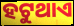
ହଟୁଥାଏ